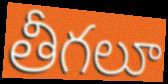
తీగలూ